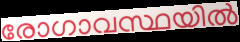
രോഗാവസ്ഥയിൽ